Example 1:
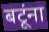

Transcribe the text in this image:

बटूंना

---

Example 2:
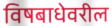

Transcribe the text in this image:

विषबाधेवरील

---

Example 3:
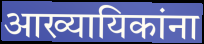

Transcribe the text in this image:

आख्यायिकांना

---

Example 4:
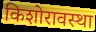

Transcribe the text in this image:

किशोरावस्था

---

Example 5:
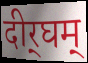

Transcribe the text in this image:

दीर्घम्